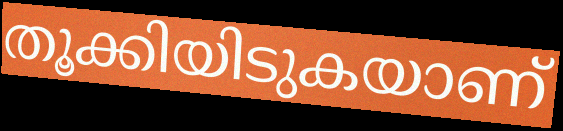
തൂക്കിയിടുകയാണ്